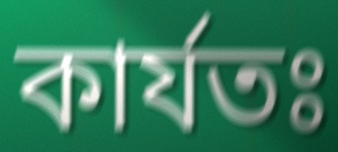
কাৰ্যতঃ